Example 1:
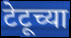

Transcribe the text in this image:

टेटूच्या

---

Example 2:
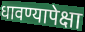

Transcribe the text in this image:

धावण्यापेक्षा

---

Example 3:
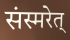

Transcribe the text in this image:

संस्मरेत्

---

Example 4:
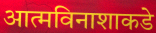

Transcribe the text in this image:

आत्मविनाशाकडे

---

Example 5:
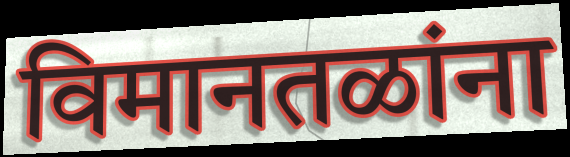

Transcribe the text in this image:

विमानतळांना